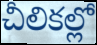
చీలికల్లో